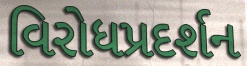
વિરોધપ્રદર્શન